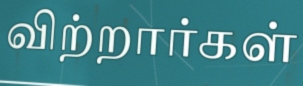
விற்றார்கள்